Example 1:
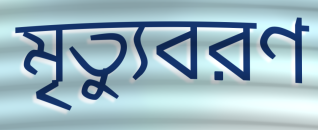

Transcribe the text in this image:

মৃত্যুবরণ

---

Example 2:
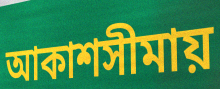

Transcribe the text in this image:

আকাশসীমায়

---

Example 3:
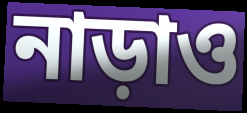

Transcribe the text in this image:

নাড়াও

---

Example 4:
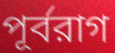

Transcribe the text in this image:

পূর্বরাগ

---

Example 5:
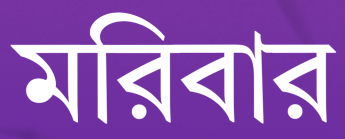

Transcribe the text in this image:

মরিবার